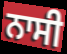
ਨਾਸੀ